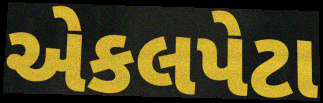
એકલપેટા